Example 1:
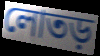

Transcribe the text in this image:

লোতড়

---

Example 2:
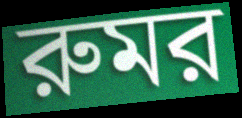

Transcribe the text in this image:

রুমর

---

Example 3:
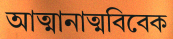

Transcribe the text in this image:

আত্মানাত্মবিবেক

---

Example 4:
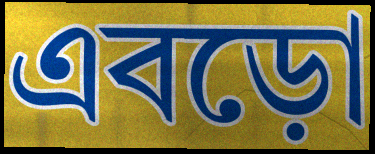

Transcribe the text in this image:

এবড়ো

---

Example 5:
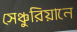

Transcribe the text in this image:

সেঞ্চুরিয়ানে